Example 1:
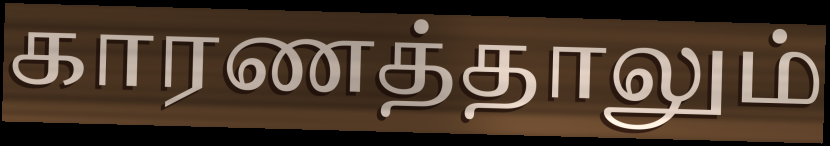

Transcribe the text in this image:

காரணத்தாலும்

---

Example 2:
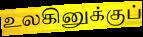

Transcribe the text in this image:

உலகினுக்குப்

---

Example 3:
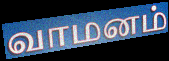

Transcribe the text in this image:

வாமனம்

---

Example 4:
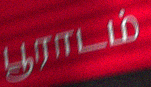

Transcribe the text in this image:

பூராடம்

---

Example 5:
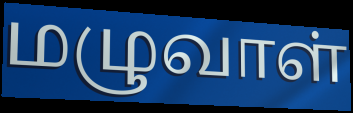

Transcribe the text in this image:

மழுவாள்